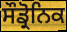
ਸੌਡ੍ਰੋਨਿਕ